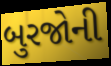
બુરજોની